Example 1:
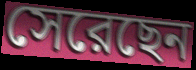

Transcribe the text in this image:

সেরেছেন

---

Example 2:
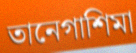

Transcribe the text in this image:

তানেগাশিমা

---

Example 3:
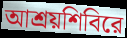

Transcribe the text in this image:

আশ্রয়শিবিরে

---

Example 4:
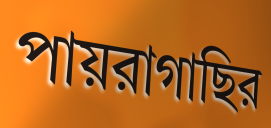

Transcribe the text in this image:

পায়রাগাছির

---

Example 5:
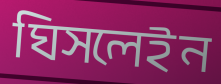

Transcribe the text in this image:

ঘিসলেইন